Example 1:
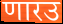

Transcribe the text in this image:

णारउ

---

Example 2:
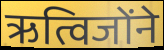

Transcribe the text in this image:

ऋत्विजोंने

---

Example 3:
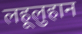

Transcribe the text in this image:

लहूलुहान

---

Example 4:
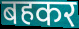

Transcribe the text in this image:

बहकर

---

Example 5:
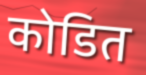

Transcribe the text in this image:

कोडित